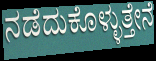
ನಡೆದುಕೊಳ್ಳುತ್ತೇನೆ